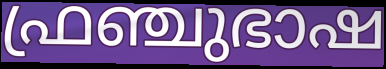
ഫ്രഞ്ചുഭാഷ